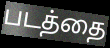
படத்தை